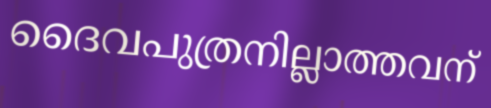
ദൈവപുത്രനില്ലാത്തവന്